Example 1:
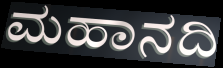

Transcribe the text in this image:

ಮಹಾನದಿ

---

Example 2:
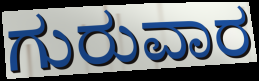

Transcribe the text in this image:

ಗುರುವಾರ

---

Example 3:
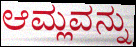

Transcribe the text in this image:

ಆಮ್ಲವನ್ನು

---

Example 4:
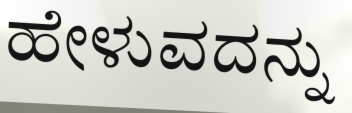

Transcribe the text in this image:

ಹೇಳುವದನ್ನು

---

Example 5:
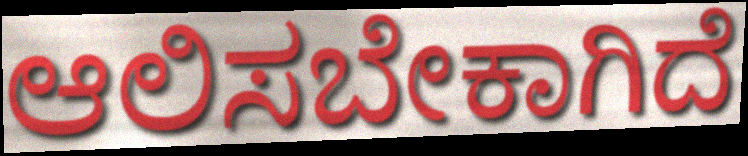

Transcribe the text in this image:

ಆಲಿಸಬೇಕಾಗಿದೆ